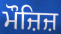
ਮੌਜ਼ਿਜ਼